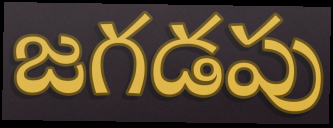
జగడపు